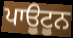
ਪਾਊਟੂਨ